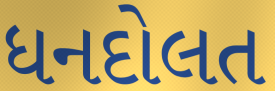
ધનદોલત